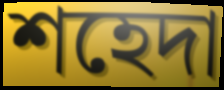
শহেদা